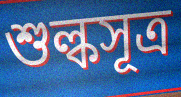
শুল্কসূত্র